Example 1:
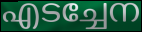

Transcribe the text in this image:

എടച്ചേന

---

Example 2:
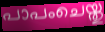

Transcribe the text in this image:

പാപംചെയ്തു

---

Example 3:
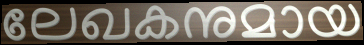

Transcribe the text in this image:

ലേഖകനുമായ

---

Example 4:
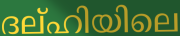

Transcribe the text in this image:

ദല്ഹിയിലെ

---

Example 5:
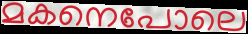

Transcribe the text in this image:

മകനെപോലെ